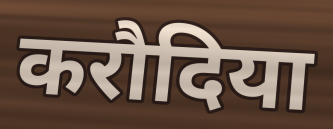
करौदिया